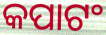
କପାଟଂ